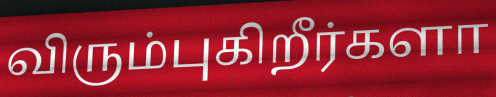
விரும்புகிறீர்களா